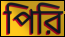
পিরি